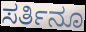
ಸರ್ತಿನೂ